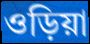
ওড়িয়া